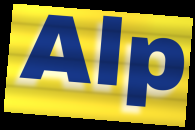
Alp